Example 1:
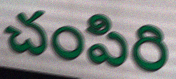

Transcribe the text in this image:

చంపిరి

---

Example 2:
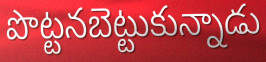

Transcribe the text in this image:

పొట్టనబెట్టుకున్నాడు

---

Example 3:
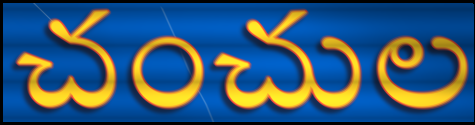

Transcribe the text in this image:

చంచుల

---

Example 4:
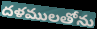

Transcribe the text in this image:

దళములతోను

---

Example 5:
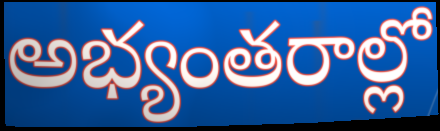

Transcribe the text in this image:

అభ్యంతరాల్లో